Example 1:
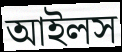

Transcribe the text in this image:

আইলস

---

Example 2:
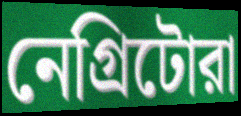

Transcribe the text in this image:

নেগ্রিটোরা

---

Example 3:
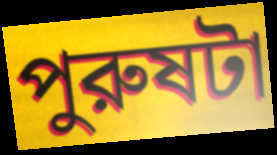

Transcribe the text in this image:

পুরুষটা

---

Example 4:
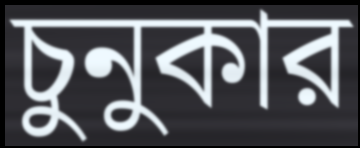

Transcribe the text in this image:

চুনুকার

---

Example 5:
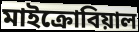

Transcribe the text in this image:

মাইক্রোবিয়াল